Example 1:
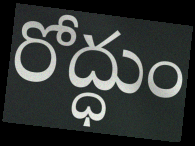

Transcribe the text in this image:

రోద్ధుం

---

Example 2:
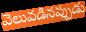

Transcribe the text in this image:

వెలువడినప్పుడు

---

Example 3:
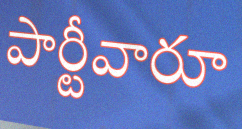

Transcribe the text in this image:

పార్టీవారూ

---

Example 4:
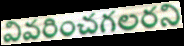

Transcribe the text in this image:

వివరించగలరని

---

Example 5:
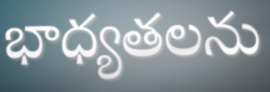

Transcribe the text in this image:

భాధ్యతలను